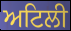
ਅਟਿਲੀ